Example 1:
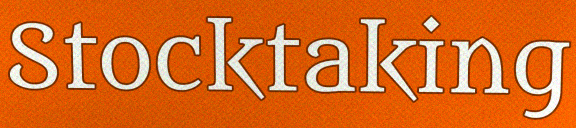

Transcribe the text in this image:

Stocktaking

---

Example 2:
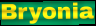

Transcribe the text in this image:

Bryonia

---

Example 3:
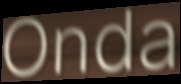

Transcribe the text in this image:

Onda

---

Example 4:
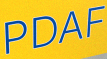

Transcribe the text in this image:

PDAF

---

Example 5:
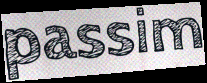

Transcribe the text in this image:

passim